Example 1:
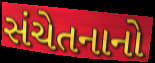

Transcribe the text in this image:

સંચેતનાનો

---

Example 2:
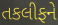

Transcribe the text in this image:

તકલીફને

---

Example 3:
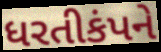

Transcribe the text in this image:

ધરતીકંપને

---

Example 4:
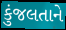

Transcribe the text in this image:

કુંજલતાને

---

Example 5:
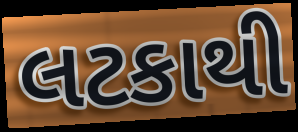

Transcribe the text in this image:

લટકાથી